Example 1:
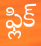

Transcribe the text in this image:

ఫ్లిక్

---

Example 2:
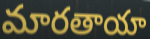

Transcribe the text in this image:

మారతాయా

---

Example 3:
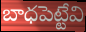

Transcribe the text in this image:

బాధపెట్టేవి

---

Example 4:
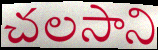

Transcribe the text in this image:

చలసాని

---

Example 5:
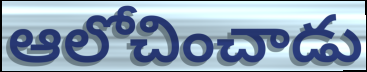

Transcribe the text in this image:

ఆలోచించాడు